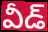
వీడ్